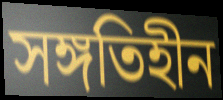
সঙ্গতিহীন